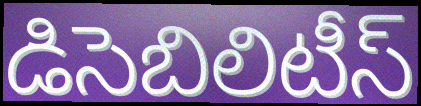
డిసెబిలిటీస్